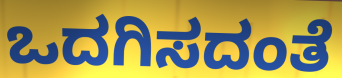
ಒದಗಿಸದಂತೆ